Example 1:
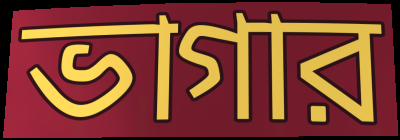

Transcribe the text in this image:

ভাগার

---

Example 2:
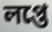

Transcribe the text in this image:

লপ্তে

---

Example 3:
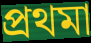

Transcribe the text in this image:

প্রথমা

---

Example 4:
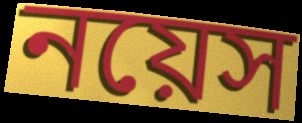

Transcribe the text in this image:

নয়েস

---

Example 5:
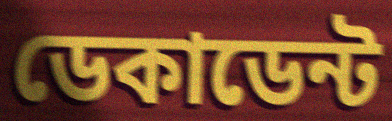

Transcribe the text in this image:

ডেকাডেন্ট